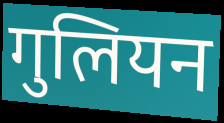
गुलियन